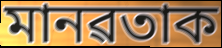
মানৱতাক